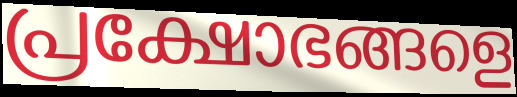
പ്രക്ഷോഭങ്ങളെ